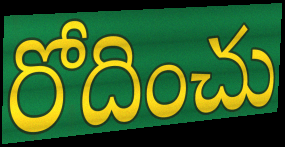
రోదించు